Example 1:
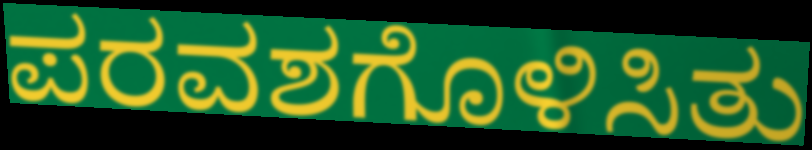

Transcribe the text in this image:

ಪರವಶಗೊಳಿಸಿತು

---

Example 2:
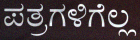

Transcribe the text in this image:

ಪತ್ರಗಳಿಗೆಲ್ಲ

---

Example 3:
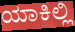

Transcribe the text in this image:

ಯಾಕಿಲ್ಲಿ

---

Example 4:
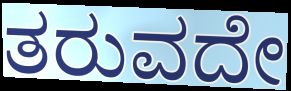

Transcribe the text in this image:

ತರುವದೇ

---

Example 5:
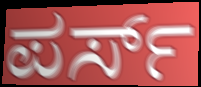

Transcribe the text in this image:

ಪರ್ಸ್